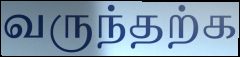
வருந்தற்க